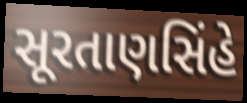
સૂરતાણસિંહે